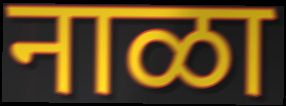
नाळा